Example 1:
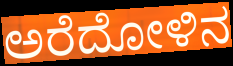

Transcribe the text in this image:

ಅರೆದೋಳಿನ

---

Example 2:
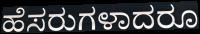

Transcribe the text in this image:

ಹೆಸರುಗಳಾದರೂ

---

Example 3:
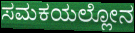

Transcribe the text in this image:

ಸಮಕಯಲ್ಲೋನ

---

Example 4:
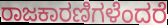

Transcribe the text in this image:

ರಾಜಕಾರಣಿಗಳೆಂದರೆ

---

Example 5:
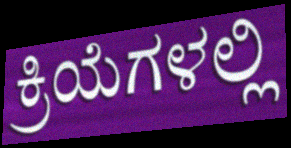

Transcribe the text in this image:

ಕ್ರಿಯೆಗಳಲ್ಲಿ